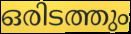
ഒരിടത്തും